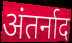
अंतर्नाद